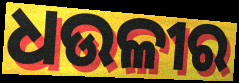
ଧଉଳୀର